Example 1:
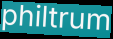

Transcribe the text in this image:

philtrum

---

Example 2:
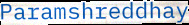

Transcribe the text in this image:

Paramshreddhay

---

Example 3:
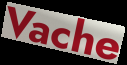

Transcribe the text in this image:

Vache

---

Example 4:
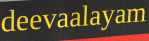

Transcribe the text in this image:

deevaalayam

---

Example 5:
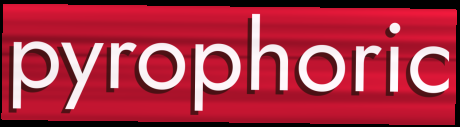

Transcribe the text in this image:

pyrophoric